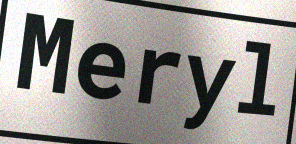
Meryl